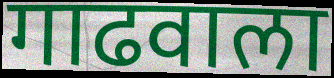
गाढवाला